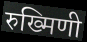
रुख्मिणी